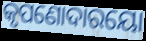
କୃପଣୋଦାରୟୋ